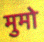
मुमो